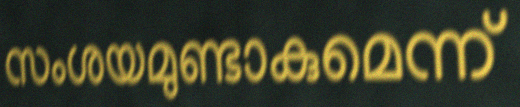
സംശയമുണ്ടാകുമെന്ന്